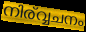
നിര്വ്വചനം